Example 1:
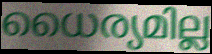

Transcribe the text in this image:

ധൈര്യമില്ല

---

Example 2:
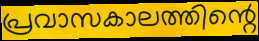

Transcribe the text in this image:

പ്രവാസകാലത്തിന്റെ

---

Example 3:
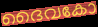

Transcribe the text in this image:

ദൈവകോ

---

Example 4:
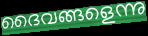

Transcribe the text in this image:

ദൈവങ്ങളെന്നു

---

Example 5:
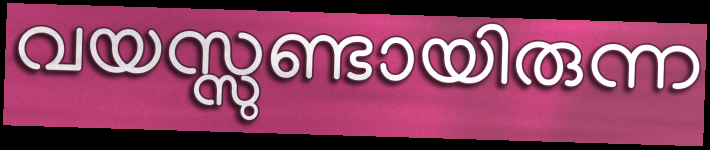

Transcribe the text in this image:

വയസ്സുണ്ടായിരുന്ന